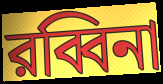
রব্বিনা